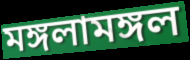
মঙ্গলামঙ্গল